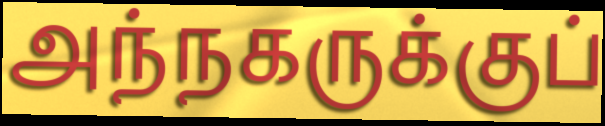
அந்நகருக்குப்